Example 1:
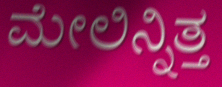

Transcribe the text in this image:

ಮೇಲಿನ್ನಿತ್ತ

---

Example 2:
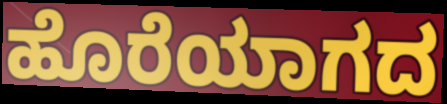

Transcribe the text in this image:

ಹೊರೆಯಾಗದ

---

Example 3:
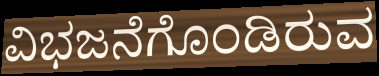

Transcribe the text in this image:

ವಿಭಜನೆಗೊಂಡಿರುವ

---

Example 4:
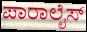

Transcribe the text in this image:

ಪಾರಾಲೈಸ್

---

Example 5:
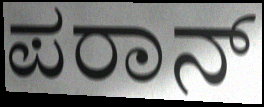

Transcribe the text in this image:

ಪರಾನ್